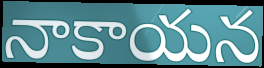
నాకాయన